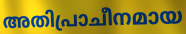
അതിപ്രാചീനമായ